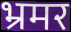
भ्रमर